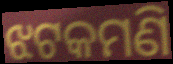
ଝଟକମଣି